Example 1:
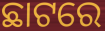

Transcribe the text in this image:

ଛାଟରେ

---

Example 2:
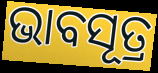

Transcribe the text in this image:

ଭାବସୂତ୍ର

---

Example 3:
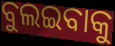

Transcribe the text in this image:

ବୁଲଇବାକୁ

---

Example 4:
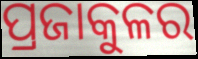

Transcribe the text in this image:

ପ୍ରଜାକୁଳର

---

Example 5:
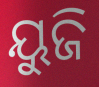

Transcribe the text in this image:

ୟୁଜି